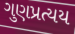
ગુણપ્રત્યય